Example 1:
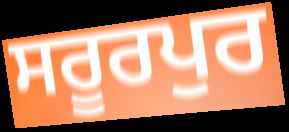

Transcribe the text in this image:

ਸਰੂਰਪੁਰ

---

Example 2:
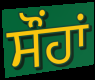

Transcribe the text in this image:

ਸੌਂਹਾਂ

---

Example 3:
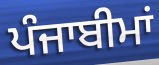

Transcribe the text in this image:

ਪੰਜਾਬੀਮਾਂ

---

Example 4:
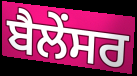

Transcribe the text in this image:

ਬੈਲੇਂਸਰ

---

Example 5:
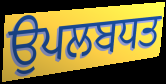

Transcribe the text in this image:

ਉਪਲਬਧਤ